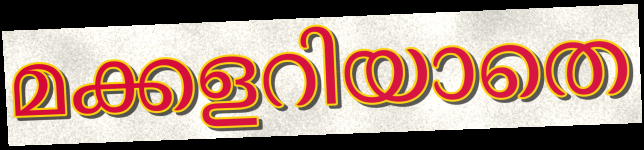
മക്കളറിയാതെ